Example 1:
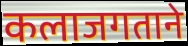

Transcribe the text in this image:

कलाजगताने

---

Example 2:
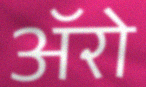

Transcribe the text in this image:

ॲरो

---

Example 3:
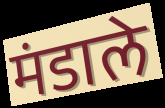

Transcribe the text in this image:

मंडाले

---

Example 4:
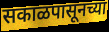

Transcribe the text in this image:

सकाळपासूनच्या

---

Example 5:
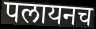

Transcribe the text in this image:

पलायनच